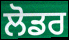
ਲੋਡਰ